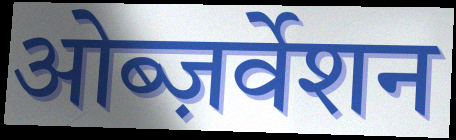
ओब्ज़र्वेशन